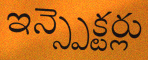
ఇన్స్పెక్టర్లు